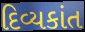
દિવ્યકાંત